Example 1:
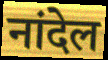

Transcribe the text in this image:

नांदेल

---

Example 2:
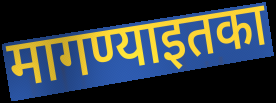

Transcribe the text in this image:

मागण्याइतका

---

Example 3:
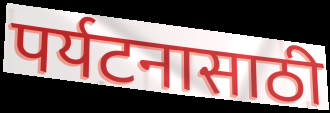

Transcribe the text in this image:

पर्यटनासाठी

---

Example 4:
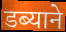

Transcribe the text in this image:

डब्याने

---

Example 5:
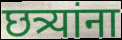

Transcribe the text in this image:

छत्र्यांना